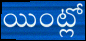
యింట్లో